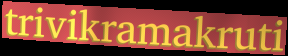
trivikramakruti